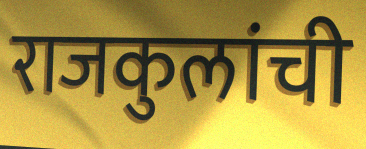
राजकुलांची